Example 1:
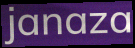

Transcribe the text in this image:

janaza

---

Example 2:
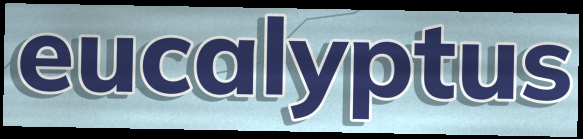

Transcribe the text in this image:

eucalyptus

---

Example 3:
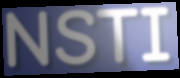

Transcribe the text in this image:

NSTI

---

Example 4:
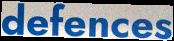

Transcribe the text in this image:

defences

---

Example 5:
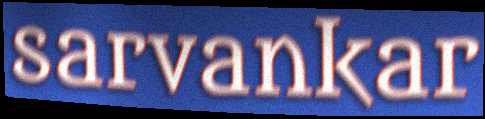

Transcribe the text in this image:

sarvankar